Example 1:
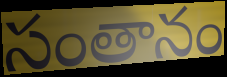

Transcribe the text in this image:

సంతానం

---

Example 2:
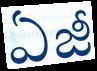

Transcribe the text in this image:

ఏజీ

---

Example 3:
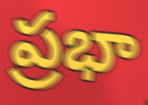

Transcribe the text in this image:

ప్రభా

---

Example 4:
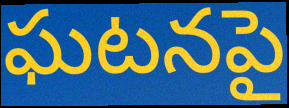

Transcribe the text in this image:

ఘటనపై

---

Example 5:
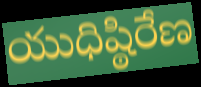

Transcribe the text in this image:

యుధిష్ఠిరేణ